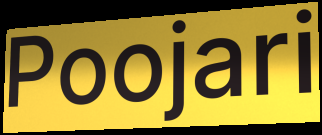
Poojari